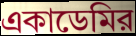
একাডেমির